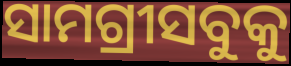
ସାମଗ୍ରୀସବୁକୁ